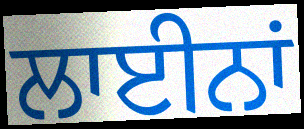
ਲਾਈਨਾਂ